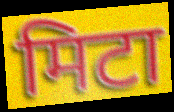
मिटा